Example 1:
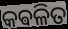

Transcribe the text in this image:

କଵଳିତ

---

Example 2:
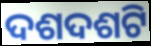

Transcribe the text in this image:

ଦଶଦଶଟି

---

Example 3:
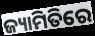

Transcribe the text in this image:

ଜ୍ୟାମିତିରେ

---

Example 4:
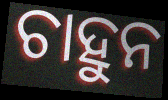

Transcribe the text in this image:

ଚାହୁନ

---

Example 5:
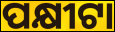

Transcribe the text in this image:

ପକ୍ଷୀଟା